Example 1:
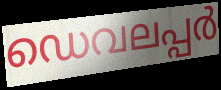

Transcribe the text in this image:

ഡെവലപ്പർ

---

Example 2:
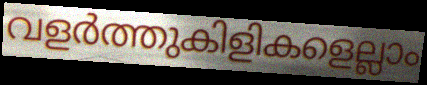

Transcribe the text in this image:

വളർത്തുകിളികളെല്ലാം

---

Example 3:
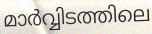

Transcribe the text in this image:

മാർവ്വിടത്തിലെ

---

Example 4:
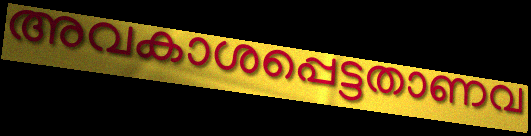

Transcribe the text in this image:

അവകാശപ്പെട്ടതാണവ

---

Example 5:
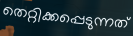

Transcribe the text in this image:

തെറ്റിക്കപ്പെടുന്നത്